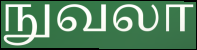
நுவலா